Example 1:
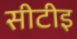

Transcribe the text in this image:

सीटीइ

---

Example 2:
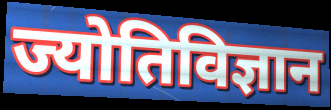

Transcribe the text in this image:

ज्योतिविज्ञान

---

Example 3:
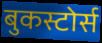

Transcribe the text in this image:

बुकस्टोर्स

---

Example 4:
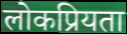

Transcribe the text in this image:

लोकप्रियता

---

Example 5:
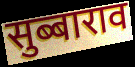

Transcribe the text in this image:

सुब्बाराव